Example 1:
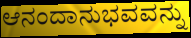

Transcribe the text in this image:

ಆನಂದಾನುಭವವನ್ನು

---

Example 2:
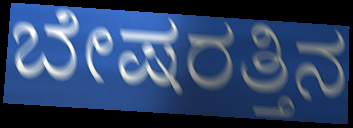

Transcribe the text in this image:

ಬೇಷರತ್ತಿನ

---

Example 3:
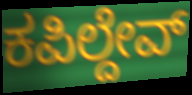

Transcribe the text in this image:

ಕಪಿಲ್ದೇವ್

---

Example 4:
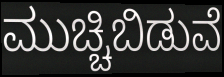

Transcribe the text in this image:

ಮುಚ್ಚಿಬಿಡುವೆ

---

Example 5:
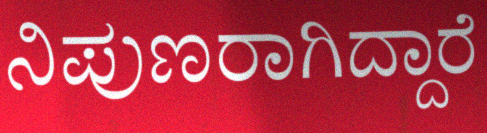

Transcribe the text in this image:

ನಿಪುಣರಾಗಿದ್ದಾರೆ